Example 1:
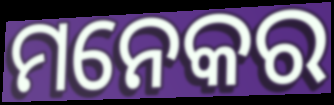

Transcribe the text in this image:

ମନେକର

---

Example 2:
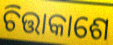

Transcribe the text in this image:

ଚିତ୍ତାକାଶେ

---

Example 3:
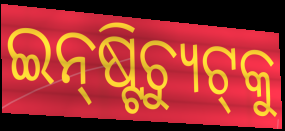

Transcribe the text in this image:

ଇନ୍‌ଷ୍ଟିଚ୍ୟୁଟ୍‌କୁ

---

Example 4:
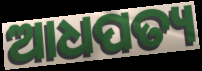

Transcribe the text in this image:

ଆଧପତ୍ୟ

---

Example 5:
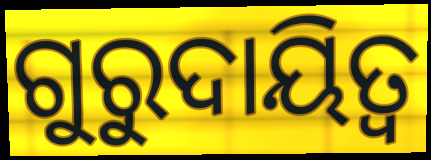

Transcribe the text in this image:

ଗୁରୁଦାୟିତ୍ୱ